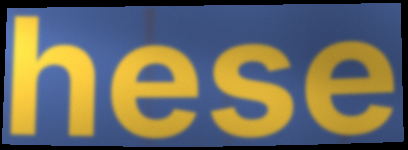
hese